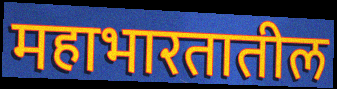
महाभारतातील